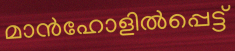
മാൻഹോളിൽപ്പെട്ട്